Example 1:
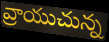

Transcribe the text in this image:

వ్రాయుచున్న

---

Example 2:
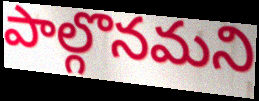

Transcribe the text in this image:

పాల్గొనమని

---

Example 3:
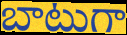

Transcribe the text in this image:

బాటుగా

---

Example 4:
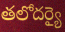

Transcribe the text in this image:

తలోదర్యై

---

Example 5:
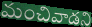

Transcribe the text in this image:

మంచివాడని